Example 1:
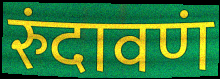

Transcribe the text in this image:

रुंदावणं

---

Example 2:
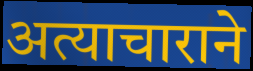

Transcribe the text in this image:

अत्याचाराने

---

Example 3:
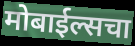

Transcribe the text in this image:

मोबाईल्सचा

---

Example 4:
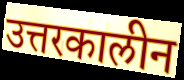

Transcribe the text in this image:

उत्तरकालीन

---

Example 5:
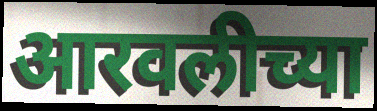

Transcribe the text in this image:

आरवलीच्या